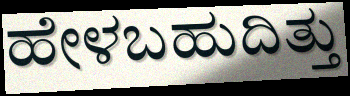
ಹೇಳಬಹುದಿತ್ತು